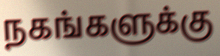
நகங்களுக்கு